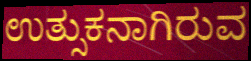
ಉತ್ಸುಕನಾಗಿರುವ